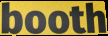
booth